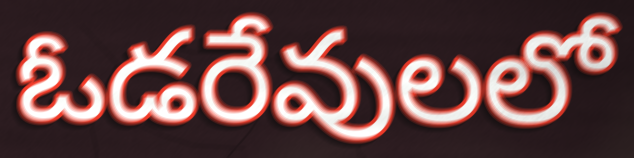
ఓడరేవులలో